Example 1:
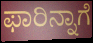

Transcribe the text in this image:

ಫಾರಿನ್ನಾಗೆ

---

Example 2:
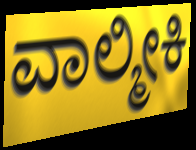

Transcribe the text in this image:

ವಾಲ್ಮೀಕಿ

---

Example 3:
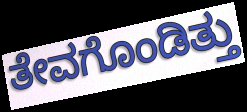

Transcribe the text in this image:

ತೇವಗೊಂಡಿತ್ತು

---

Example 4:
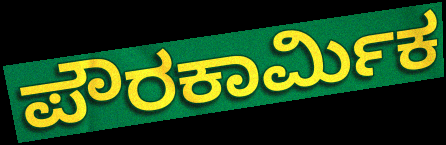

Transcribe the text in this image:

ಪೌರಕಾರ್ಮಿಕ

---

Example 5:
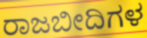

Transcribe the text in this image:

ರಾಜಬೀದಿಗಳ